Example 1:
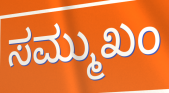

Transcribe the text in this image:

ಸಮ್ಮುಖಂ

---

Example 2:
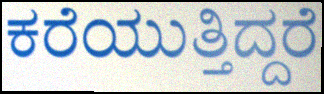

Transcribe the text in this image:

ಕರೆಯುತ್ತಿದ್ದರೆ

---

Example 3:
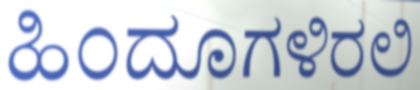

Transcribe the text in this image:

ಹಿಂದೂಗಳಿರಲಿ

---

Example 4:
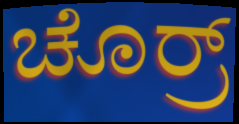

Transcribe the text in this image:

ಚೊರ್ರ್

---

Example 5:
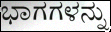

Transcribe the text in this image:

ಭಾಗಗಳನ್ನು